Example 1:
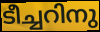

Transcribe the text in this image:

ടീച്ചറിനു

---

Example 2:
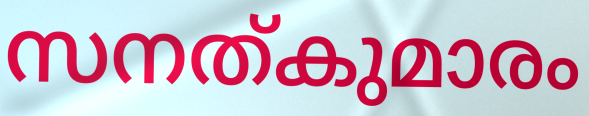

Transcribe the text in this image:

സനത്കുമാരം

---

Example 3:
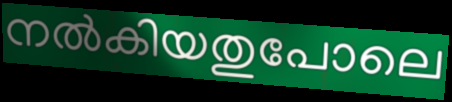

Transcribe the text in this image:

നൽകിയതുപോലെ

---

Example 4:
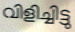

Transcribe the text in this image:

വിളിച്ചിട്ടു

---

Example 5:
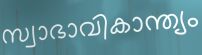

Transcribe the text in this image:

സ്വാഭാവികാന്ത്യം